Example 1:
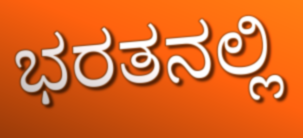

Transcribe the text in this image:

ಭರತನಲ್ಲಿ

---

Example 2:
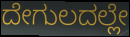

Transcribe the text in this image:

ದೇಗುಲದಲ್ಲೇ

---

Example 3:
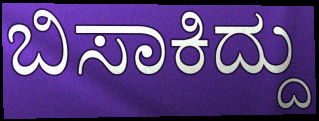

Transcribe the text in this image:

ಬಿಸಾಕಿದ್ದು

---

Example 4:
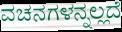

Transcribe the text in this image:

ವಚನಗಳನ್ನಲ್ಲದೆ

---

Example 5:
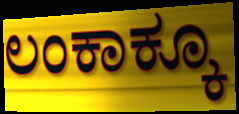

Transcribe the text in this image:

ಲಂಕಾಕ್ಕೂ